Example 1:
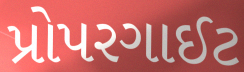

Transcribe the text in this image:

પ્રોપરગાઈટ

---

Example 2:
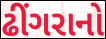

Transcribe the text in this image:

ઢીંગરાનો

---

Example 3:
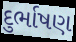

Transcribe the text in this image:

દુર્ભાષણ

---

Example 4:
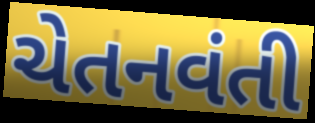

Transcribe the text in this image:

ચેતનવંતી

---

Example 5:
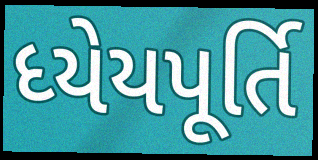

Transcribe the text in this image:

ધ્યેયપૂર્તિ